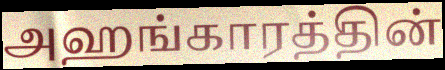
அஹங்காரத்தின்